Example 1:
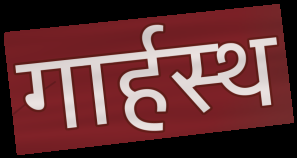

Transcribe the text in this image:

गार्हस्थ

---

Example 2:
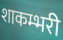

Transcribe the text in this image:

शाकम्भरी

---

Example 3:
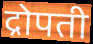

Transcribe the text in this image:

द्रोपती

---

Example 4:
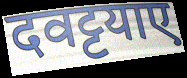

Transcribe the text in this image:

दवट्टयाए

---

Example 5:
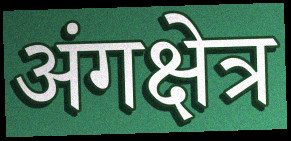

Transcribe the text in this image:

अंगक्षेत्र